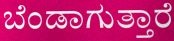
ಬೆಂಡಾಗುತ್ತಾರೆ